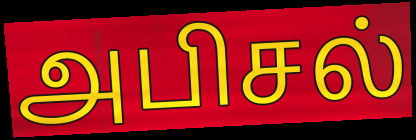
அபிசல்